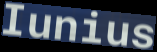
Iunius